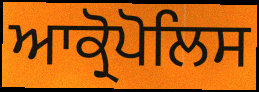
ਆਕ੍ਰੋਪੋਲਿਸ